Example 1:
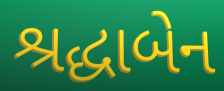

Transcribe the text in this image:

શ્રદ્ધાબેન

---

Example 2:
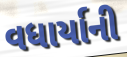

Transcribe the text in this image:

વધાર્યાની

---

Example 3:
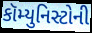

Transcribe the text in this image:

કૉમ્યુનિસ્ટોની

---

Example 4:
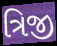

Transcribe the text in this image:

ત્રિજી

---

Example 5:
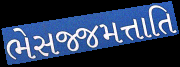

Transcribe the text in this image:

ભેસજ્જમત્તાતિ